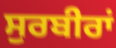
ਸੁਰਬੀਰਾਂ